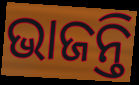
ଭାଜନ୍ତି